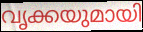
വൃക്കയുമായി